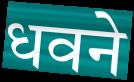
धवने